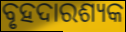
ବୃହଦାରଶ୍ୟକ